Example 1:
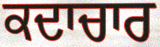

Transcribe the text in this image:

ਕਦਾਚਾਰ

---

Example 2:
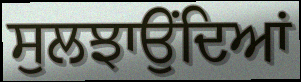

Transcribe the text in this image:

ਸੁਲਝਾਉਂਦਿਆਂ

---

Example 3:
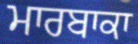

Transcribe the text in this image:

ਮਾਰਬਾਕਾ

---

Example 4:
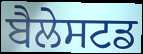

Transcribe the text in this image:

ਬੈਲੇਸਟਡ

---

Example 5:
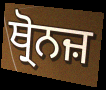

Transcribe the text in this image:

ਥ੍ਰੋਨਜ਼